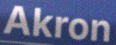
Akron